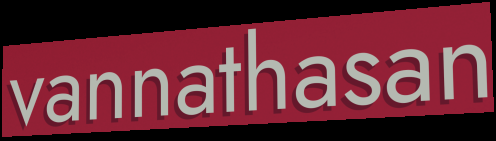
vannathasan